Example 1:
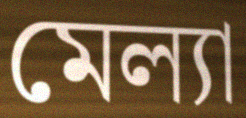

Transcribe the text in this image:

মেল্যা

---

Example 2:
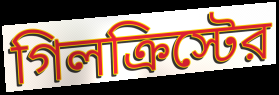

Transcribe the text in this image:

গিলক্রিস্টের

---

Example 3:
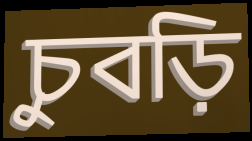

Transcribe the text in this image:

চুবড়ি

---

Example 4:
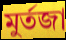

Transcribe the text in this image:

মুর্তজা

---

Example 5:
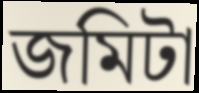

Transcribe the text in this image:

জমিটা